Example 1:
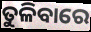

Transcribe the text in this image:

ତୁଳିବାରେ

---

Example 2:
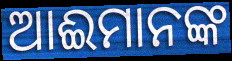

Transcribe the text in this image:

ଆଈମାନଙ୍କ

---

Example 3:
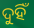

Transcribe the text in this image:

ଦୁହିଁ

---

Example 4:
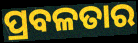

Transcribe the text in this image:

ପ୍ରବଳତାର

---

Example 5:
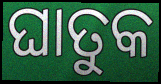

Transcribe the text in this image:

ଘାତୁକ